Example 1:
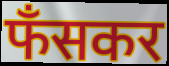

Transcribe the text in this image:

फँसकर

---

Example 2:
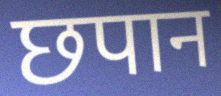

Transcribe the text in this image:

छपान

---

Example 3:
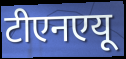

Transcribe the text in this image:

टीएनएयू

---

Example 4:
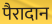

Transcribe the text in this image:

पैरादान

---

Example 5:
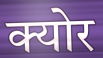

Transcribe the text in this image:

क्योर